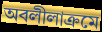
অবলীলাক্রমে